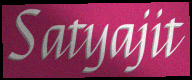
Satyajit